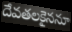
దేవతలకైననూ